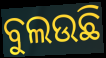
ବୁଲଉଛି